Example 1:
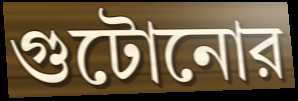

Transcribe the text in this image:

গুটোনোর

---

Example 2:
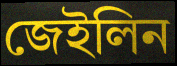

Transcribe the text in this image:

জেইলিন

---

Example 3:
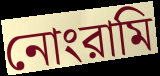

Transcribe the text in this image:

নোংরামি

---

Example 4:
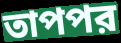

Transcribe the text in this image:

তাপপর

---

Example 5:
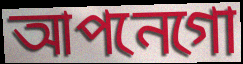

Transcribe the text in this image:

আপনেগো